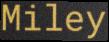
Miley